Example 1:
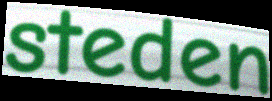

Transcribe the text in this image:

steden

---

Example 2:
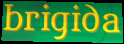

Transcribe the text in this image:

brigida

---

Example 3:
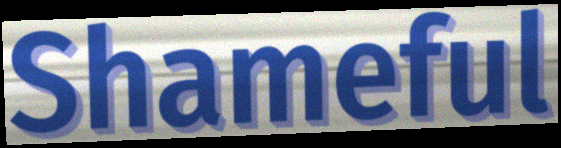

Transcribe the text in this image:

Shameful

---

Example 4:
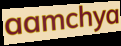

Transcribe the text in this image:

aamchya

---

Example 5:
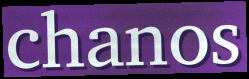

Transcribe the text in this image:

chanos